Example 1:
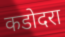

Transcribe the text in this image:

कडोदरा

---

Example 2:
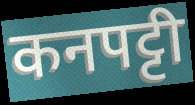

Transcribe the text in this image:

कनपट्टी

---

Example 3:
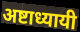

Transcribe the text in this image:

अष्टाध्यायी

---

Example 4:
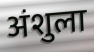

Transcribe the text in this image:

अंशुला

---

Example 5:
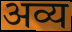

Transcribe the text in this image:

अव्य